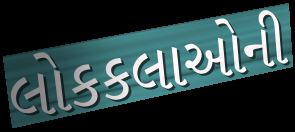
લોકકલાઓની